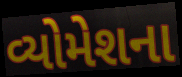
વ્યોમેશના